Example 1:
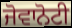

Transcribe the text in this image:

ਜੋਵਾਨੋਟੀ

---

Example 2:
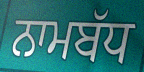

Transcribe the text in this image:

ਨਾਮਬੱਧ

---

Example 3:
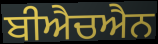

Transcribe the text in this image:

ਬੀਐਚਐਨ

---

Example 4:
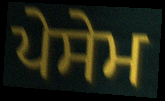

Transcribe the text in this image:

ਪੇਸੇਮ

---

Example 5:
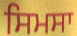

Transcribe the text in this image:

ਸਿਮਸਾ